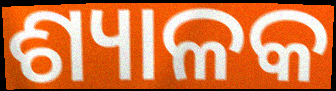
ଶ୍ୟାଳକ